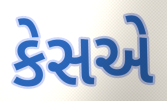
કેસએ